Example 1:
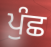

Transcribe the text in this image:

ਪੁੰਛ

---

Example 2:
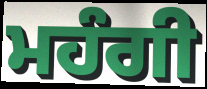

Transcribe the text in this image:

ਮਹੰਗੀ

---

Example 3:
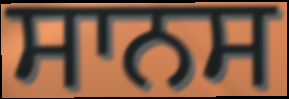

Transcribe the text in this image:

ਸਾਨਸ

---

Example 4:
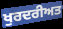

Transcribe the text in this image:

ਖੁਰਦਰੀਅਤ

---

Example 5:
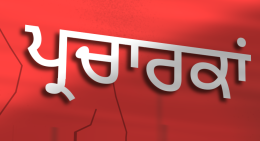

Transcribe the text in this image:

ਪ੍ਰਚਾਰਕਾਂ